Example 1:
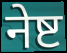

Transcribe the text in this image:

नेष्ट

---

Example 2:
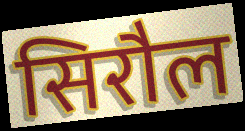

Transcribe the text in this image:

सिरौल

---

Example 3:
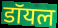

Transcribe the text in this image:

डॉयल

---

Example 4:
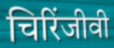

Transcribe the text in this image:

चिरिंजीवी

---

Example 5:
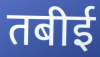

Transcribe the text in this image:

तबीई